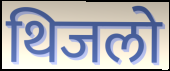
थिजलो